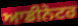
ਆਡੀਨੇਟਰ